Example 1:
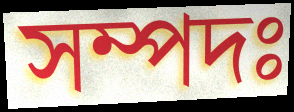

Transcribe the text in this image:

সম্পদঃ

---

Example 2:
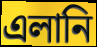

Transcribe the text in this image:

এলানি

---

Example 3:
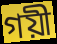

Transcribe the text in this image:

গয়ী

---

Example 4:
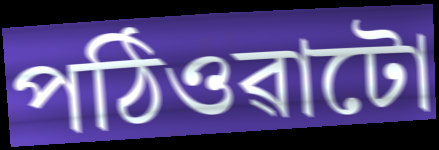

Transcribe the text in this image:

পঠিওৱাটো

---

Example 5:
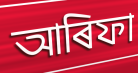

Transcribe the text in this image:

আৰিফা